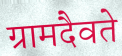
ग्रामदैवते